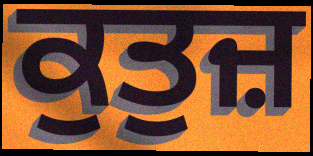
ਕੁਤੁਜ਼